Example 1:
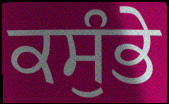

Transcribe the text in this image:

ਕਸੁੰਭੇ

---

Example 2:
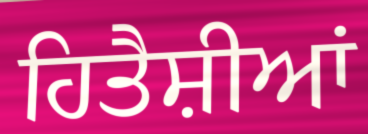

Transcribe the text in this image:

ਹਿਤੈਸ਼ੀਆਂ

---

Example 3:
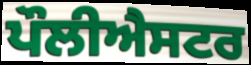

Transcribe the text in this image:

ਪੌਲੀਐਸਟਰ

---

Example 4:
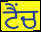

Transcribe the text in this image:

ਟੈਂਚ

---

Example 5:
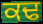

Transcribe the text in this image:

ਕਢ